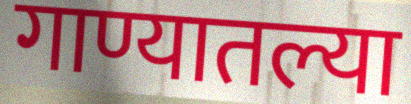
गाण्यातल्या